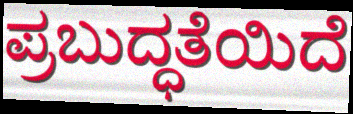
ಪ್ರಬುದ್ಧತೆಯಿದೆ